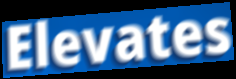
Elevates